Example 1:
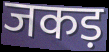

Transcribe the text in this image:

जकड़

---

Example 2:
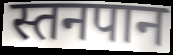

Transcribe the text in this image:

स्तनपान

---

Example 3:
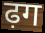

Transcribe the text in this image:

ढ़ग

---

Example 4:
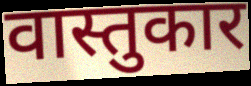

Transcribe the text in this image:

वास्तुकार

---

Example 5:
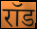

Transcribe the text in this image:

रॉड